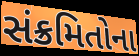
સંક્રમિતોના